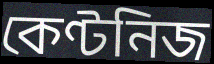
কেণ্টনিজ